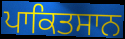
ਪਾਕਿਤਸਾਨ